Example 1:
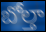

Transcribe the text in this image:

బోల్తా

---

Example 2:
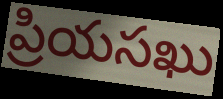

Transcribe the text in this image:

ప్రియసఖు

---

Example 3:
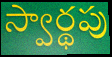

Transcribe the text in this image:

స్వార్థపు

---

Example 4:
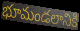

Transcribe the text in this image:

భూమండలానికి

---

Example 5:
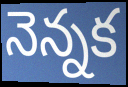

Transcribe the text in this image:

నెన్నక